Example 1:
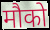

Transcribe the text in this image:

मौको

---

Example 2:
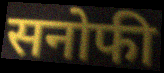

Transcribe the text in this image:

सनोफी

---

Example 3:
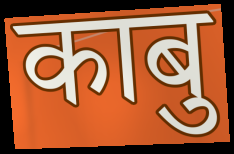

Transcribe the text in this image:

काबु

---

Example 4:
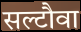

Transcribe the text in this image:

सल्टौवा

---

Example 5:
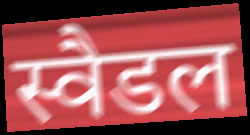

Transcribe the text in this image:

स्वैडल